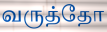
வருத்தோ